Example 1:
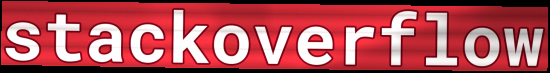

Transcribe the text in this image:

stackoverflow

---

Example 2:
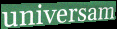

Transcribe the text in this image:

universam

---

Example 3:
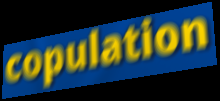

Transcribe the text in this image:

copulation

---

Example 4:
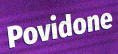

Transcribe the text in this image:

Povidone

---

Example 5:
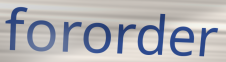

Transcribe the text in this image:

fororder